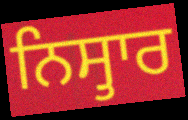
ਨਿਸ੍ਤਾਰ